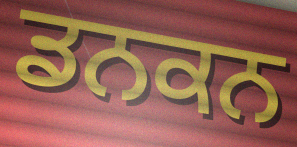
ਡਨਕਨ